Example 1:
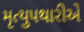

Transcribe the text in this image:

મૃત્યુપથારીએ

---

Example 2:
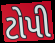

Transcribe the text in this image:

ટોપી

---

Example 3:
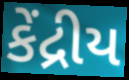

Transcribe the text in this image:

કેંદ્રીય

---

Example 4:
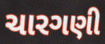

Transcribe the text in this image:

ચારગણી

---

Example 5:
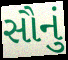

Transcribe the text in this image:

સૌનું